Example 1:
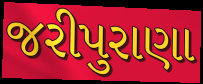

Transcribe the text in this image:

જરીપુરાણા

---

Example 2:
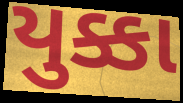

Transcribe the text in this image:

યુક્કા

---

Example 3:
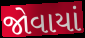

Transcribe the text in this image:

જોવાયાં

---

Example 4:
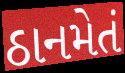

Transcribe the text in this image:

ઠાનમેતં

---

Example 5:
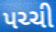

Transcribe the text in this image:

પચ્ચી